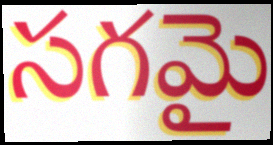
సగమై